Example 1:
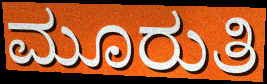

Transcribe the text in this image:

ಮೂರುತಿ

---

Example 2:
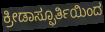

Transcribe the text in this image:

ಕ್ರೀಡಾಸ್ಫೂರ್ತಿಯಿಂದ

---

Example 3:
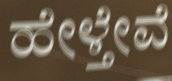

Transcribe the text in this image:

ಹೇಳ್ತೇವೆ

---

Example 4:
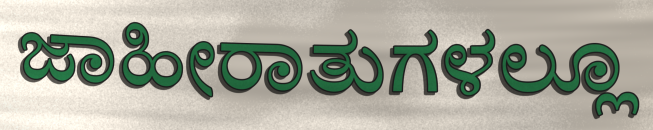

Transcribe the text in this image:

ಜಾಹೀರಾತುಗಳಲ್ಲೂ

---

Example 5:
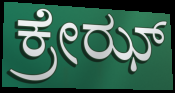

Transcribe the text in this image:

ಕ್ರೇಝ್